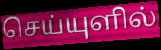
செய்யுளில்